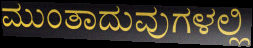
ಮುಂತಾದುವುಗಳಲ್ಲಿ